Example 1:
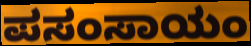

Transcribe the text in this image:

ಪಸಂಸಾಯಂ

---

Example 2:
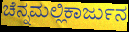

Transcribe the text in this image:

ಚೆನ್ನಮಲ್ಲಿಕಾರ್ಜುನ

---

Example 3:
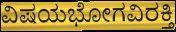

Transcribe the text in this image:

ವಿಷಯಭೋಗವಿರಕ್ತಿ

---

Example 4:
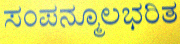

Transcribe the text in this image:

ಸಂಪನ್ಮೂಲಭರಿತ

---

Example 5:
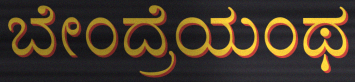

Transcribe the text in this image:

ಬೇಂದ್ರೆಯಂಥ